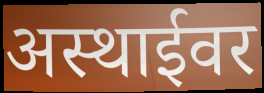
अस्थाईवर